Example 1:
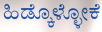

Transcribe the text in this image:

ಹಿಡ್ಕೊಳ್ಳೋಕೆ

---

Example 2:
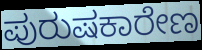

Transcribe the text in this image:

ಪುರುಷಕಾರೇಣ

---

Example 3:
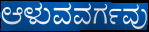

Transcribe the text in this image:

ಆಳುವವರ್ಗವು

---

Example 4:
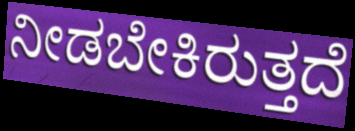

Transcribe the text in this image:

ನೀಡಬೇಕಿರುತ್ತದೆ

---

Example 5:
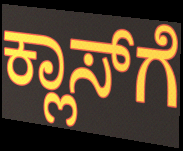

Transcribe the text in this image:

ಕ್ಲಾಸ್‌ಗೆ